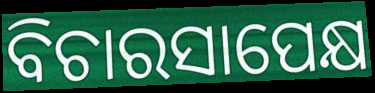
ବିଚାରସାପେକ୍ଷ